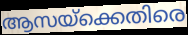
ആസയ്ക്കെതിരെ